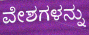
ವೇಶಗಳನ್ನು